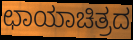
ಛಾಯಾಚಿತ್ರದ